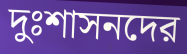
দুঃশাসনদের